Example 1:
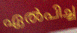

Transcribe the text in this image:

ഏൽപിച്ച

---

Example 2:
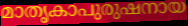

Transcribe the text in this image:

മാതൃകാപുരുഷനായ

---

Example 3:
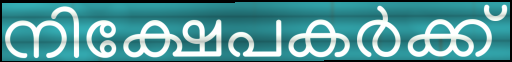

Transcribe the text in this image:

നിക്ഷേപകർക്ക്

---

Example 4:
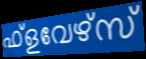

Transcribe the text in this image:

ഫ്ളവേഴ്സ്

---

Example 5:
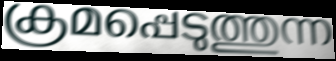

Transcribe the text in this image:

ക്രമപ്പെടുത്തുന്ന